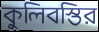
কুলিবস্তির